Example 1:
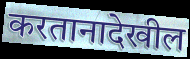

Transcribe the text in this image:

करतानादेखील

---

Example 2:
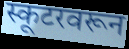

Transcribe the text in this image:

स्कूटरवरून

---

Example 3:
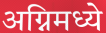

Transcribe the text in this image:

अग्निमध्ये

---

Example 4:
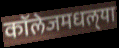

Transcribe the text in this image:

कॉलेजमधल्या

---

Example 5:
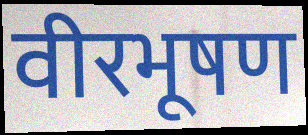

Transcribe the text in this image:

वीरभूषण